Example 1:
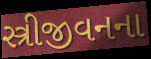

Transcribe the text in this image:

સ્ત્રીજીવનના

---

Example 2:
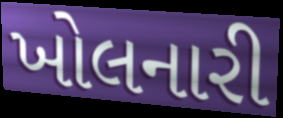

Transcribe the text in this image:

ખોલનારી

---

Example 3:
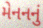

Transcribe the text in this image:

મેનનનું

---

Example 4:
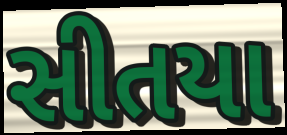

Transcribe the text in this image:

સીતયા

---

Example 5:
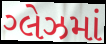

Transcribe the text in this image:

ગ્લેઝમાં